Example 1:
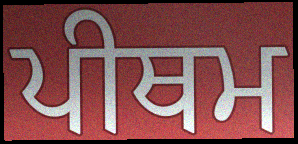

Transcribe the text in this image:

ਪੀਥਮ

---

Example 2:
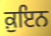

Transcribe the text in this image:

ਕ਼ੁਇਨ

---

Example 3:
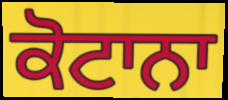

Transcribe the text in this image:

ਕੋਟਾਨਾ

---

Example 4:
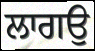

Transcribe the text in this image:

ਲਾਗਉ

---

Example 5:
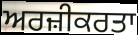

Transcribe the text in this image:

ਅਰਜ਼ੀਕਰਤਾ